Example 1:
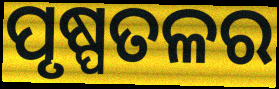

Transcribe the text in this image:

ପୃଷ୍ପତଳର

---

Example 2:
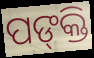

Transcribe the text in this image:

ପଙ୍‍କ୍ତି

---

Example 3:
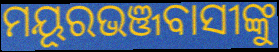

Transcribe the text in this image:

ମୟୂରଭଞ୍ଜବାସୀଙ୍କୁ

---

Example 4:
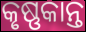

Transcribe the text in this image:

କୃଷ୍ଣକାନ୍ତ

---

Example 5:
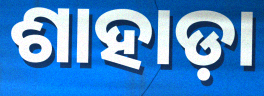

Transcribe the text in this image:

ଶାହାଡ଼ା